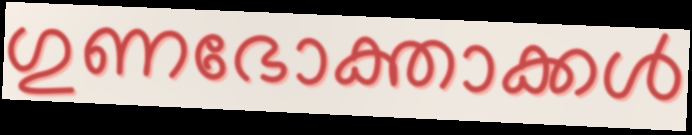
ഗുണഭോക്താക്കൾ